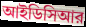
আইডিসিআর